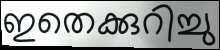
ഇതെക്കുറിച്ചു